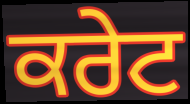
ਕਰੇਟ